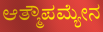
ಆತ್ಮೌಪಮ್ಯೇನ